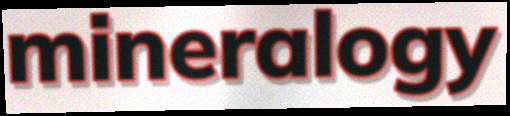
mineralogy